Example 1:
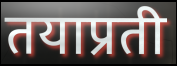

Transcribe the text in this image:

तयाप्रती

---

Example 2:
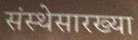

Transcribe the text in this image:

संस्थेसारख्या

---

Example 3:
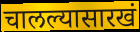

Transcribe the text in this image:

चालल्यासारखं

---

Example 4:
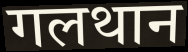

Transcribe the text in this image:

गलथान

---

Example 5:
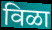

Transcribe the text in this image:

विळा